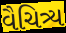
વૈચિત્ર્ય